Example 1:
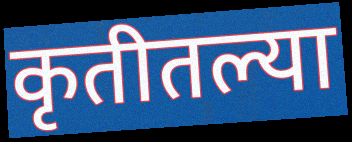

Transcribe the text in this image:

कृतीतल्या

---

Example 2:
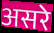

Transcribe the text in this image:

असरे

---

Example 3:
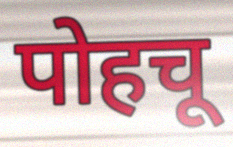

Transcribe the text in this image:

पोहचू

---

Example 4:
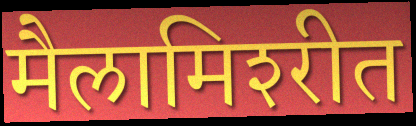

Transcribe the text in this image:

मैलामिश्रीत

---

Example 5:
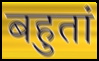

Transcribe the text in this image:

बहुतां